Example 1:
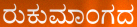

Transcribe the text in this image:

ರುಕುಮಾಂಗದ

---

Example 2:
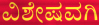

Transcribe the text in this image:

ವಿಶೇಷವಗಿ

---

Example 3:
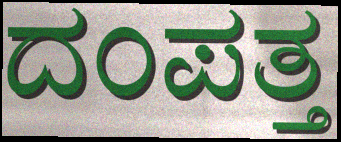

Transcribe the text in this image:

ದಂಪತ್ತ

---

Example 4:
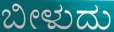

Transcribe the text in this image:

ಬೀಳುದು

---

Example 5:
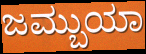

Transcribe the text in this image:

ಜಮ್ಬುಯಾ